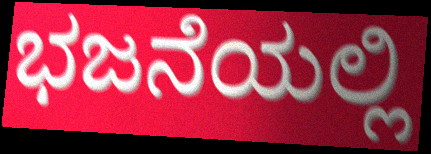
ಭಜನೆಯಲ್ಲಿ